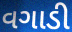
વગાડી